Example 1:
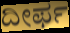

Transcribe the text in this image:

ದೀರ್ಫ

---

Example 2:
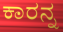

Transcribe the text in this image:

ಕಾರನ್ನ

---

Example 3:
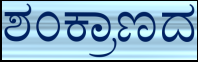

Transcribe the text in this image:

ಶಂಕ್ರಾಣದ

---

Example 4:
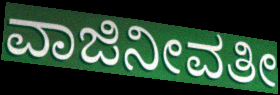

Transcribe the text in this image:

ವಾಜಿನೀವತೀ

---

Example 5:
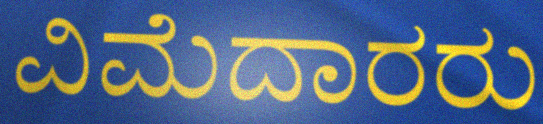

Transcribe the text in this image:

ವಿಮೆದಾರರು